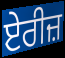
ਏਰੀਜ਼